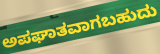
ಅಪಘಾತವಾಗಬಹುದು